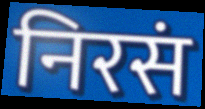
निरसं